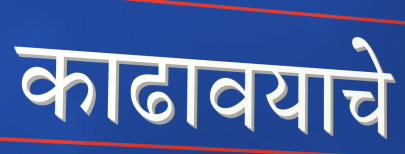
काढावयाचे